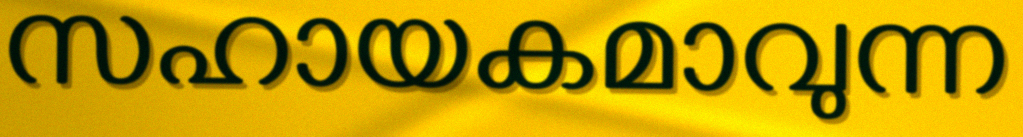
സഹായകമാവുന്ന